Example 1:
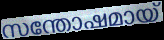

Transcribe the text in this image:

സന്തോഷമായ്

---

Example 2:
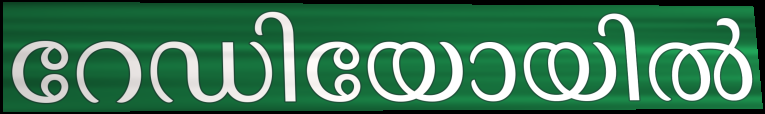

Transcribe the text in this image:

റേഡിയോയിൽ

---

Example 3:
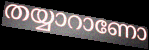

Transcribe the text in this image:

തയ്യാറാണോ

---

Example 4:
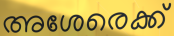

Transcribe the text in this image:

അശേരെക്ക്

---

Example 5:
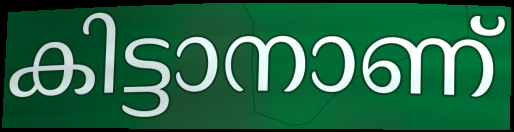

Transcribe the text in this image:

കിട്ടാനാണ്